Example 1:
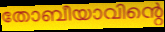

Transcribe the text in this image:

തോബീയാവിന്റെ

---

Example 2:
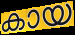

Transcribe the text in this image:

കായ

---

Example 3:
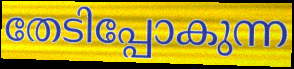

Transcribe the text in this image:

തേടിപ്പോകുന്ന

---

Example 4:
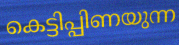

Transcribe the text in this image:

കെട്ടിപ്പിണയുന്ന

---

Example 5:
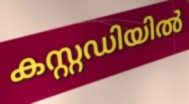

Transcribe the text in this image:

കസ്റ്റഡിയിൽ